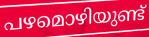
പഴമൊഴിയുണ്ട്